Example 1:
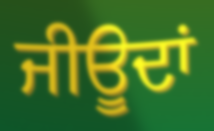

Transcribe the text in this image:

ਜੀਊਦਾਂ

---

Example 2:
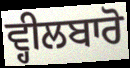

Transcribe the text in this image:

ਵ੍ਹੀਲਬਾਰੋ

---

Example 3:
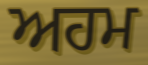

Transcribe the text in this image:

ਅਹਮ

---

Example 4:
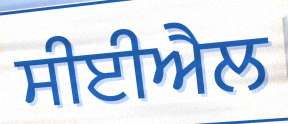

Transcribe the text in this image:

ਸੀਈਐਲ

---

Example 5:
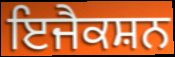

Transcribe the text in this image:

ਇਜੈਕਸ਼ਨ